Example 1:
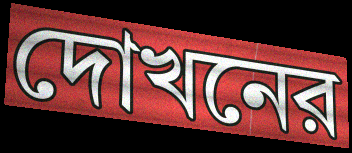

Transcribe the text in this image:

দোখনের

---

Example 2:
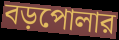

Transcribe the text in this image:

বড়পোলার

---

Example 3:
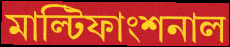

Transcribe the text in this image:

মাল্টিফাংশনাল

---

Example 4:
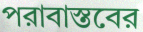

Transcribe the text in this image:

পরাবাস্তবের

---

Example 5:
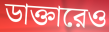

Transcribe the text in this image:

ডাক্তারেও